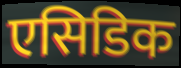
एसिडिक